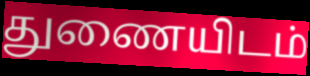
துணையிடம்